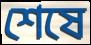
শেষে